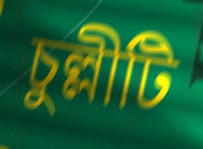
চুল্লীটি